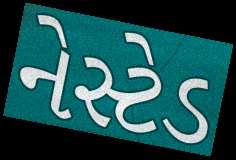
નેસ્ટેડ